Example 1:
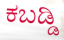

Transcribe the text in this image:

ಕಬಡ್ಡಿ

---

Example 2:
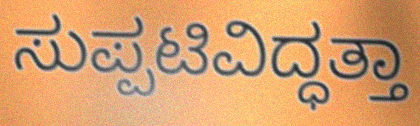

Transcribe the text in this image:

ಸುಪ್ಪಟಿವಿದ್ಧತ್ತಾ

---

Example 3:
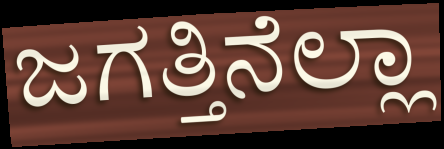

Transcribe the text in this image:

ಜಗತ್ತಿನೆಲ್ಲಾ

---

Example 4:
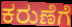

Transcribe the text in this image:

ಕರುಣೆಗೆ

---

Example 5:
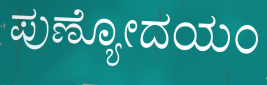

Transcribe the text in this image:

ಪುಣ್ಯೋದಯಂ